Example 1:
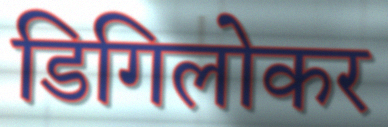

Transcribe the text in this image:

डिगिलोकर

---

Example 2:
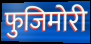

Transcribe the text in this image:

फुजिमोरी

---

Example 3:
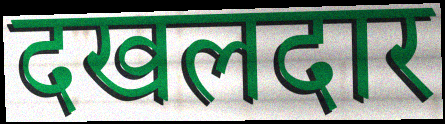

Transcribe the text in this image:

दखलदार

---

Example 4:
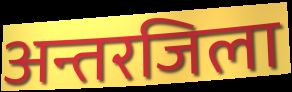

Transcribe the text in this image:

अन्तरजिला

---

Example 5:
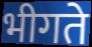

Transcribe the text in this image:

भीगते